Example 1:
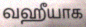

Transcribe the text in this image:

வஹீயாக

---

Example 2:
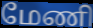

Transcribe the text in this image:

மேணி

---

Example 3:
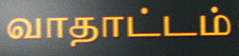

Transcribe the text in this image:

வாதாட்டம்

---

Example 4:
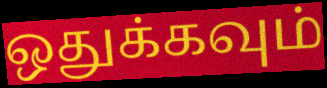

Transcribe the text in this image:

ஒதுக்கவும்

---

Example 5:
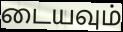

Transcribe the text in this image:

டையவும்